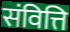
संवित्ति